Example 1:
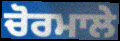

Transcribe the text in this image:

ਚੋਰਮਾਲੇ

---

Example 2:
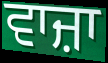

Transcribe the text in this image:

ਵਾਜ਼ਾ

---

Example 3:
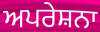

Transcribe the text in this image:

ਅਪਰੇਸ਼ਨਾ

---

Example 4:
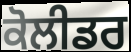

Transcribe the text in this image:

ਕੋਲੀਡਰ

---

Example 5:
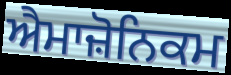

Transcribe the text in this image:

ਐਮਾਜ਼ੋਨਿਕਮ